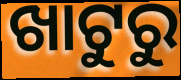
ଖାଟୁରୁ